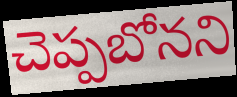
చెప్పబోనని